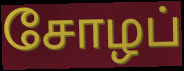
சோழப்